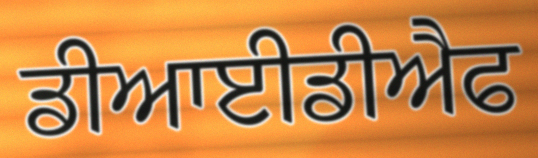
ਡੀਆਈਡੀਐਫ